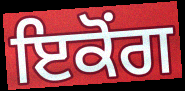
ਇਕੋਂਗ